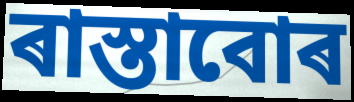
ৰাস্তাবোৰ